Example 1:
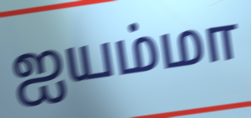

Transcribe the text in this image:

ஐயம்மா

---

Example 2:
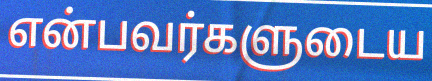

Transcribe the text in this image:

என்பவர்களுடைய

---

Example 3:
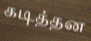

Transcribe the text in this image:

கடித்தன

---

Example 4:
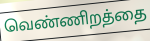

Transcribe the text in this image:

வெண்ணிறத்தை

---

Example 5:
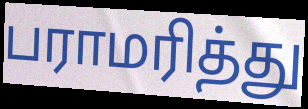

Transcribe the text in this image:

பராமரித்து